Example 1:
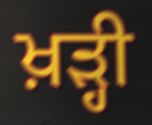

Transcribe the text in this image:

ਖ਼ੜ੍ਹੀ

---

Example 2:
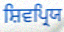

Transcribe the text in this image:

ਸ਼ਿਵਪ੍ਰਿਯ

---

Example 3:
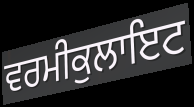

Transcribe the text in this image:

ਵਰਮੀਕੁਲਾਇਟ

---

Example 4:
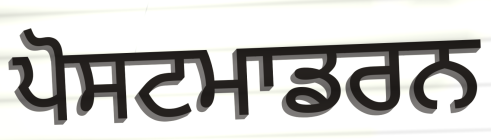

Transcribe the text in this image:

ਪੋਸਟਮਾਡਰਨ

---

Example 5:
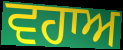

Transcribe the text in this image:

ਵਹਾਅ